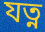
যত্ন